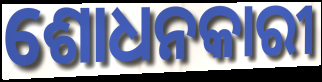
ଶୋଧନକାରୀ